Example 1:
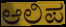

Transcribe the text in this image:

ಆಲಿಪ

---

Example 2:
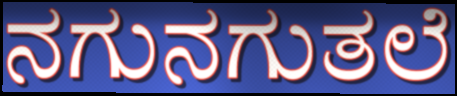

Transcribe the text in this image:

ನಗುನಗುತಲೆ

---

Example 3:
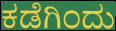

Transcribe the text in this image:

ಕಡೆಗಿಂದು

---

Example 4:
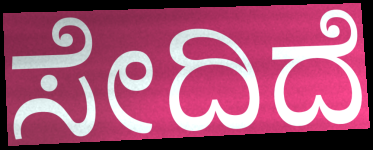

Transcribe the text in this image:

ಸೇದಿದೆ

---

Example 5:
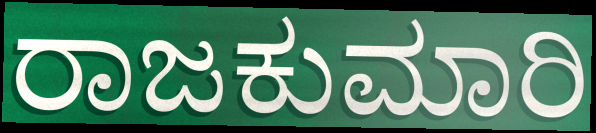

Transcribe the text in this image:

ರಾಜಕುಮಾರಿ